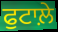
ਫੁਟਾਲ਼ੇ